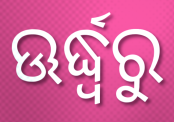
ଊର୍ଦ୍ଧ୍ଵରୁ